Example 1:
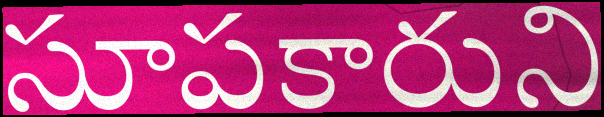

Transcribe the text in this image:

సూపకారుని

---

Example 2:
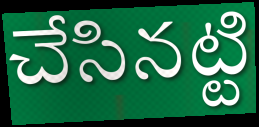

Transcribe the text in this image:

చేసినట్టి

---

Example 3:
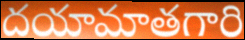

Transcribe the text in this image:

దయామాతగారి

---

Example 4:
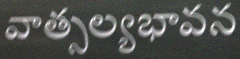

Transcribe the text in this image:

వాత్సల్యభావన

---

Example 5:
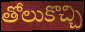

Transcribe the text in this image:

తోలుకొచ్చి